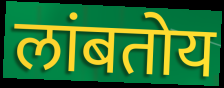
लांबतोय